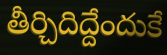
తీర్చిదిద్దేందుకే